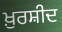
ਖ਼ੁਰਸ਼ੀਦ